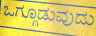
ಒಗ್ಗೂಡುವುದು